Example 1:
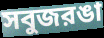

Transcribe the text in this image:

সবুজরঙা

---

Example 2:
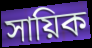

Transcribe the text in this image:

সায়িক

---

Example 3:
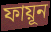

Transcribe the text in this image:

ফায়ূন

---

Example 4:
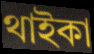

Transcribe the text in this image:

থাইকা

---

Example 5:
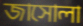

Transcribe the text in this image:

জাসোলা